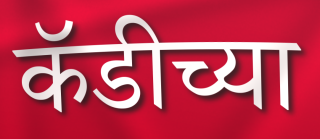
कॅडीच्या